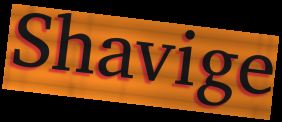
Shavige